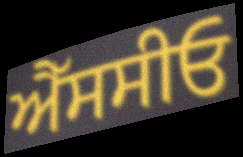
ਐੱਸਸੀਓ